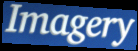
Imagery